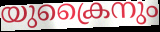
യുക്രൈനും